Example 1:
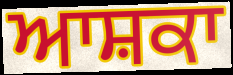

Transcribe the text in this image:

ਆਸ਼ਕਾ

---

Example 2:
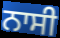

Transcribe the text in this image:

ਨਾਸੀ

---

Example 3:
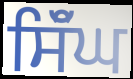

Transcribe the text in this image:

ਸਿੱੰਘ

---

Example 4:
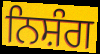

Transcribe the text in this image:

ਨਿਸ਼ੰਗ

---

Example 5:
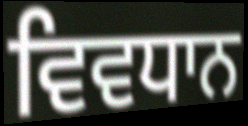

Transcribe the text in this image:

ਵਿਵਧਾਨ